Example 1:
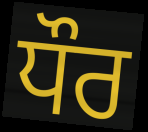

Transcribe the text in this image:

ਧੌਰ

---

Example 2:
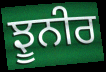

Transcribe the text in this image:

ਝੂਨੀਰ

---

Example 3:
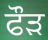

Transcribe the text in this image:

ਫੌਡ਼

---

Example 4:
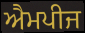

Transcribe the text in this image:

ਐਮਪੀਜ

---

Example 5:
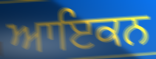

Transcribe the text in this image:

ਆਇਕਨ